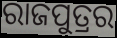
ରାଜପୁତ୍ରର